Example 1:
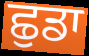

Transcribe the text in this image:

ਛੁਡਾ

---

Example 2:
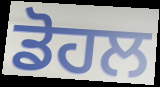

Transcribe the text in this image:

ਡੋਹਲ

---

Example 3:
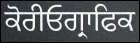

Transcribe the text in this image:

ਕੋਰੀਓਗ੍ਰਾਫਿਕ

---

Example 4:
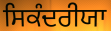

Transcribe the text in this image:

ਸਿਕੰਦਰੀਯਾ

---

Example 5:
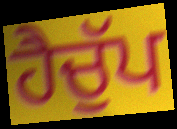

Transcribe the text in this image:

ਹੈਚੁੱਪ